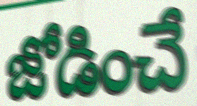
జోడించే